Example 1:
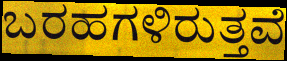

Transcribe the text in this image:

ಬರಹಗಳಿರುತ್ತವೆ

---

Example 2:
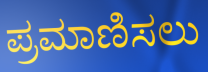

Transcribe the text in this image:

ಪ್ರಮಾಣಿಸಲು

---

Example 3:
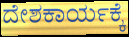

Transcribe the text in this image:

ದೇಶಕಾರ್ಯಕ್ಕೆ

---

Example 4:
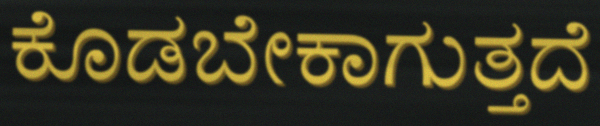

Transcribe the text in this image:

ಕೊಡಬೇಕಾಗುತ್ತದೆ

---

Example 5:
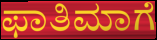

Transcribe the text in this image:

ಫಾತಿಮಾಗೆ